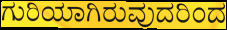
ಗುರಿಯಾಗಿರುವುದರಿಂದ